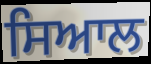
ਸਿਆਲ